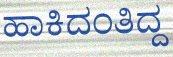
ಹಾಕಿದಂತಿದ್ದ